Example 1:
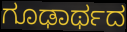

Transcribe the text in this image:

ಗೂಢಾರ್ಥದ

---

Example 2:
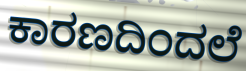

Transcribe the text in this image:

ಕಾರಣದಿಂದಲೆ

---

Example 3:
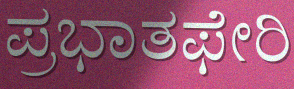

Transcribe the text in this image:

ಪ್ರಭಾತಫೇರಿ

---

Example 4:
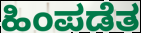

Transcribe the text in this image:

ಹಿಂಪಡೆತ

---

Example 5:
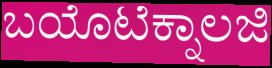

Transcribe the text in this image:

ಬಯೊಟೆಕ್ನಾಲಜಿ